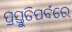
ପ୍ରସ୍ତୁତିପର୍ବରେ